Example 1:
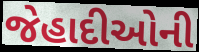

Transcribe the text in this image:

જેહાદીઓની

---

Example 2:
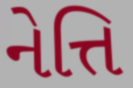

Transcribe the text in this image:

નેત્તિ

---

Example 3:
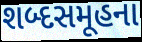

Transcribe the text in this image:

શબ્દસમૂહના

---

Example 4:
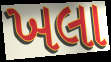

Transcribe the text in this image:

ખલા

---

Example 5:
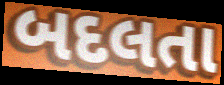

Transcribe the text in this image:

બદલતા